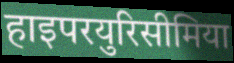
हाइपरयुरिसीमिया